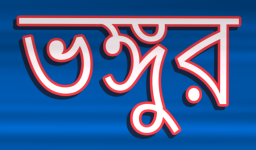
ভঙ্গুর